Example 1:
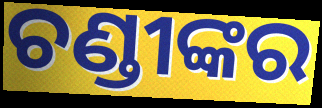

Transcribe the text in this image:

ଚଣ୍ଡୀଙ୍କର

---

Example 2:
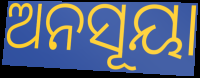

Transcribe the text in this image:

ଅନସୂୟା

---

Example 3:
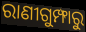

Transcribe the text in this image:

ରାଣୀଗୁମ୍ଫାରୁ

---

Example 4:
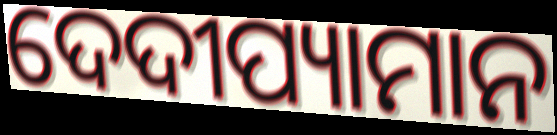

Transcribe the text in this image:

ଦେଦୀପ୍ୟାମାନ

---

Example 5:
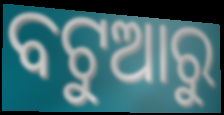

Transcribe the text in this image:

ବଟୁଆରୁ